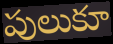
పులుకూ